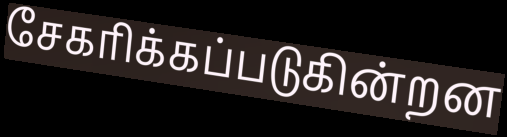
சேகரிக்கப்படுகின்றன